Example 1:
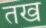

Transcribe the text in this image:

तख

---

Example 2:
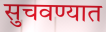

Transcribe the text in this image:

सुचवण्यात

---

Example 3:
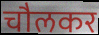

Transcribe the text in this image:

चौलकर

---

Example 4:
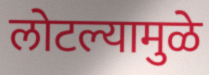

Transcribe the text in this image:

लोटल्यामुळे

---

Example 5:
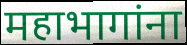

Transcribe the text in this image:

महाभागांना